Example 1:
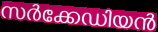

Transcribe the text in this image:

സർക്കേഡിയൻ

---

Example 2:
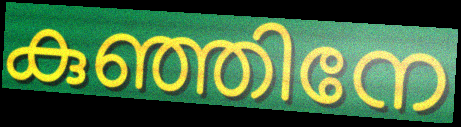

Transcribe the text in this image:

കുഞ്ഞിനേ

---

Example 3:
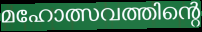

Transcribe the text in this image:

മഹോത്സവത്തിന്റെ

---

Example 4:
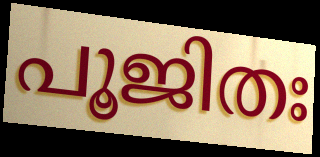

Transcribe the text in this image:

പൂജിതഃ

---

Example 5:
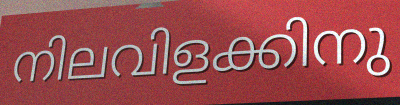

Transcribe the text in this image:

നിലവിളക്കിനു